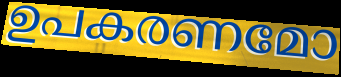
ഉപകരണമോ